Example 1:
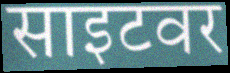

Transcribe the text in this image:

साइटवर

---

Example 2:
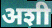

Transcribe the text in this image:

अशी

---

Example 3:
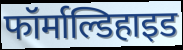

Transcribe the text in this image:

फॉर्माल्डिहाइड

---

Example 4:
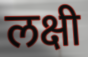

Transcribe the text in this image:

लक्षी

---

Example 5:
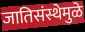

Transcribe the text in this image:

जातिसंस्थेमुळे